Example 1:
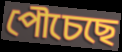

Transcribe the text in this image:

পৌচেছে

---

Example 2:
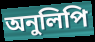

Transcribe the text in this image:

অনুলিপি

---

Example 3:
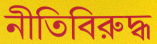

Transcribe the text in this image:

নীতিবিরুদ্ধ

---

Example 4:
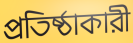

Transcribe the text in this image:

প্রতিষ্ঠাকারী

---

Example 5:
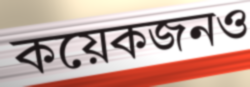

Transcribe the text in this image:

কয়েকজনও